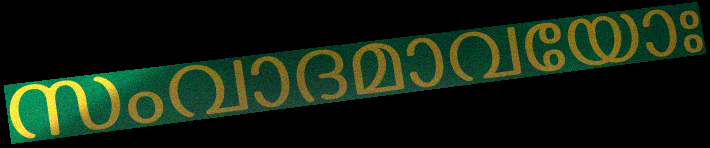
സംവാദമാവയോഃ